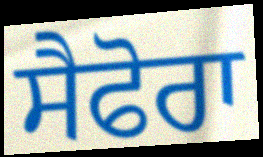
ਸੈਫੋਰਾ